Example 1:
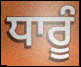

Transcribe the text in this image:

ਧਾਰੂੰ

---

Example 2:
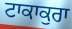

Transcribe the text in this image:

ਟਾਕਾਕੁਰਾ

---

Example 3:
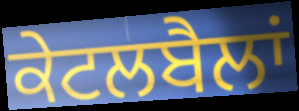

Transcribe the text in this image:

ਕੇਟਲਬੈਲਾਂ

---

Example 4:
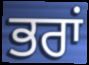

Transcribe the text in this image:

ਭਰਾਂ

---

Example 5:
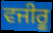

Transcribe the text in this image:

ਵਜੀਰੂ